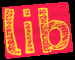
lib